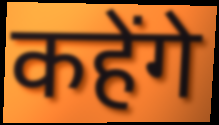
कहेंगे